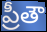
ప్రీతౌ